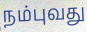
நம்புவது